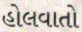
હોલવાતો